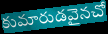
కుమారుడవైనచో